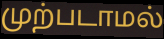
முற்படாமல்